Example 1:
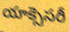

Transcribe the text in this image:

యాక్సెసరీ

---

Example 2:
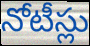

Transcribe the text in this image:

నోటీస్లు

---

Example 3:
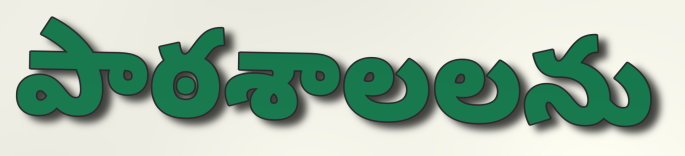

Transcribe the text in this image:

పాఠశాలలను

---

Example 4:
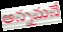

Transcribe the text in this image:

అన్నమనే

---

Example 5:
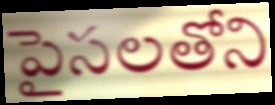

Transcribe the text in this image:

పైసలతోని